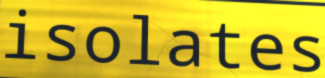
isolates